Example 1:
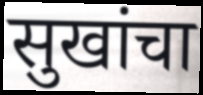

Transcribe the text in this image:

सुखांचा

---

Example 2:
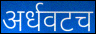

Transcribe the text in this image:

अर्धवटच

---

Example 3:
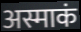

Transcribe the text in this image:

अस्माकं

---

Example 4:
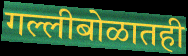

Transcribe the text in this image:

गल्लीबोळातही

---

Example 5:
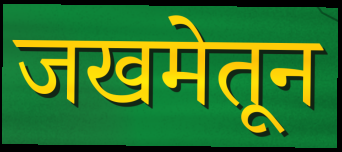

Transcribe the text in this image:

जखमेतून